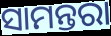
ସାମନ୍ତରା